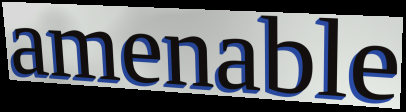
amenable